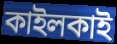
কাইলকাই